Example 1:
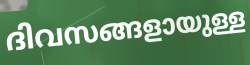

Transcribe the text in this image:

ദിവസങ്ങളായുള്ള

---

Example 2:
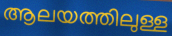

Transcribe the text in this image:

ആലയത്തിലുള്ള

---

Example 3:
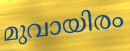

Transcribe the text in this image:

മുവായിരം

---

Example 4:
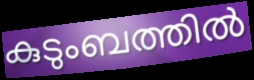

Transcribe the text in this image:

കുടുംബത്തിൽ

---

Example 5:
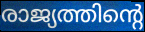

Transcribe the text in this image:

രാജ്യത്തിന്റെ